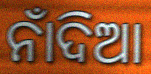
ନାଁଦିଆ